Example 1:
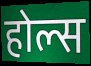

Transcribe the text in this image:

होल्स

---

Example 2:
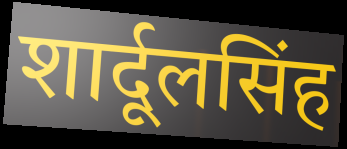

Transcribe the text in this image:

शार्दूलसिंह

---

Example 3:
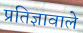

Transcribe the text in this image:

प्रतिज्ञावाले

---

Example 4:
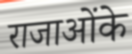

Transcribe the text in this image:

राजाओंके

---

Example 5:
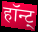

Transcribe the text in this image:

हॉन्ट्